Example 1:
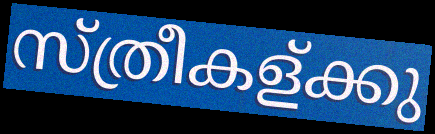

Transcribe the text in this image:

സ്ത്രീകള്ക്കു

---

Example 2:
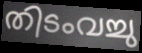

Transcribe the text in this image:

തിടംവച്ചു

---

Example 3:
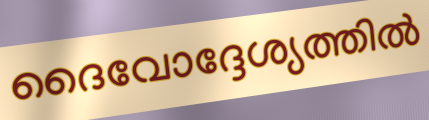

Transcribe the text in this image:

ദൈവോദ്ദേശ്യത്തിൽ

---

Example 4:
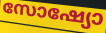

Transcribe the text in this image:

സോഷ്യോ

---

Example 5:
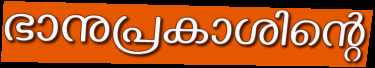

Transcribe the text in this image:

ഭാനുപ്രകാശിന്റെ